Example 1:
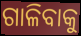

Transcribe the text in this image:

ଗାଳିବାକୁ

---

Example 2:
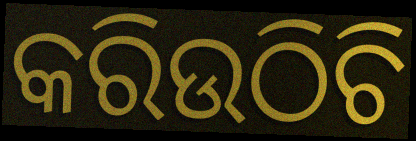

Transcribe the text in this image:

କରିଉଠିଚି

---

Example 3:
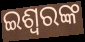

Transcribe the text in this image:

ଇଶ୍ୱରଙ୍କ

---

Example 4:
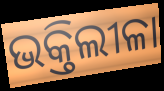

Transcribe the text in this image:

ଭକ୍ତିଲୀଳା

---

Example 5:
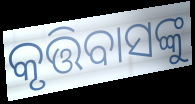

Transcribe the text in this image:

କୃତ୍ତିବାସଙ୍କୁ